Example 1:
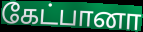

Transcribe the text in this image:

கேட்பானா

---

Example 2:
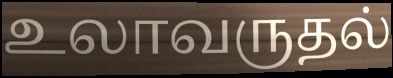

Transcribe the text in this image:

உலாவருதல்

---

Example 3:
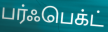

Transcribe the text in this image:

பர்ஃபெக்ட்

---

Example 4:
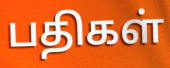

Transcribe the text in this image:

பதிகள்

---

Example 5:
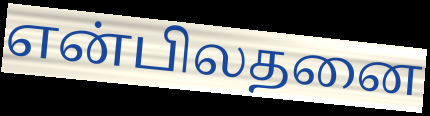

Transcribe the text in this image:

என்பிலதனை